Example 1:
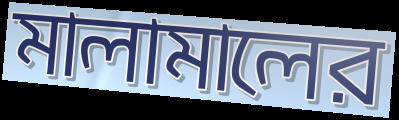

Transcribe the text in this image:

মালামালের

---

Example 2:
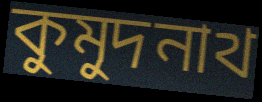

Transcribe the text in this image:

কুমুদনাথ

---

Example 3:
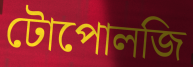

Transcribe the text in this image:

টোপোলজি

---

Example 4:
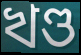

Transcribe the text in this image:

খণ্ড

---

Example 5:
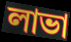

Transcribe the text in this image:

লাভা